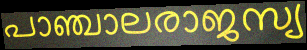
പാഞ്ചാലരാജസ്യ